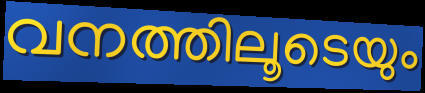
വനത്തിലൂടെയും